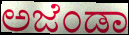
ಅಜೆಂಡಾ